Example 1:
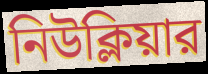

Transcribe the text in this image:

নিউক্লিয়ার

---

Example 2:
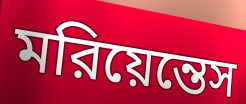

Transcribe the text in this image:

মরিয়েন্তেস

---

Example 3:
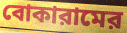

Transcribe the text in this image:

বোকারামের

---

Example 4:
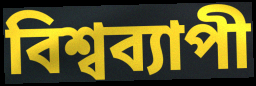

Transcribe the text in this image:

বিশ্বব্যাপী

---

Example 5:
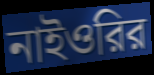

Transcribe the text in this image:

নাইওরির